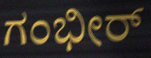
ಗಂಭೀರ್